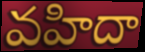
వహిదా